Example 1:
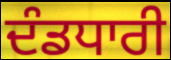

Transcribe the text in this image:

ਦੰਡਧਾਰੀ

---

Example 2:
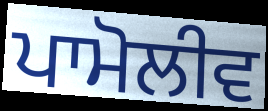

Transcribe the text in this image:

ਪਾਮੋਲੀਵ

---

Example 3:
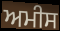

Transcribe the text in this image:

ਅਮੀਸ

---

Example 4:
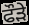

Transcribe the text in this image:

ਫੌੜੇ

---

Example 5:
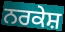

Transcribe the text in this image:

ਨਰਕੇਸ਼